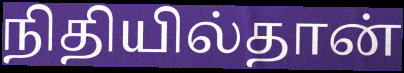
நிதியில்தான்